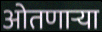
ओतणाऱ्या